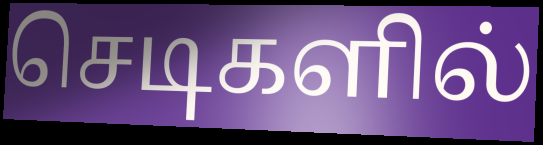
செடிகளில்